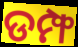
ଡମ୍ଫ